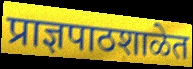
प्राज्ञपाठशाळेत